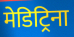
मेडिट्रिना